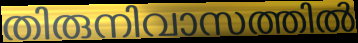
തിരുനിവാസത്തിൽ